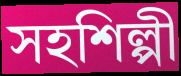
সহশিল্পী